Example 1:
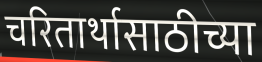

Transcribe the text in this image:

चरितार्थासाठीच्या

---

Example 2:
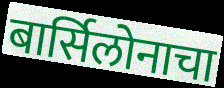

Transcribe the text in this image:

बार्सिलोनाचा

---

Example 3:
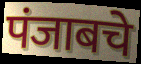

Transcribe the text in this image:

पंजाबचे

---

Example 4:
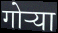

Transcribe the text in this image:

गोऱ्या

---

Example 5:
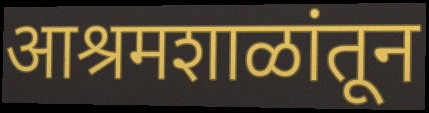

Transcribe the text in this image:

आश्रमशाळांतून